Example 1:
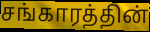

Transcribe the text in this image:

சங்காரத்தின்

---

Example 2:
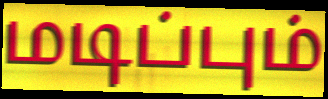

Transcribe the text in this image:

மடிப்பும்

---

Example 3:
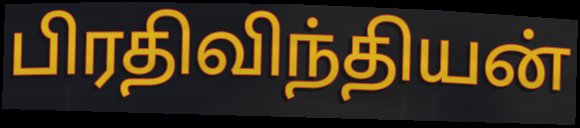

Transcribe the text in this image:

பிரதிவிந்தியன்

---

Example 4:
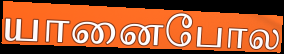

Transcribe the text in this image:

யானைபோல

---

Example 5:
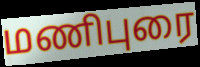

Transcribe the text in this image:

மணிபுரை